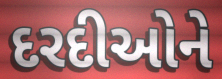
દરદીઓને